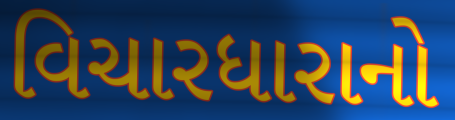
વિચારધારાનો